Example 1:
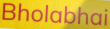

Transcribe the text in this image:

Bholabhai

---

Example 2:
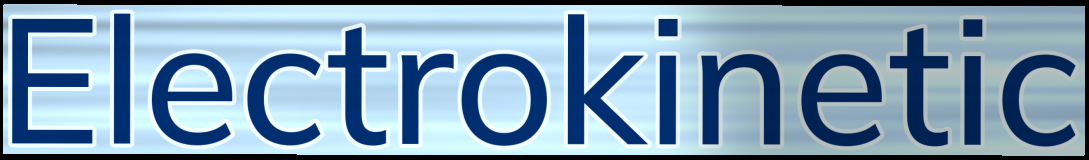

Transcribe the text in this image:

Electrokinetic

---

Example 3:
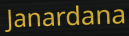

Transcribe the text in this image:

Janardana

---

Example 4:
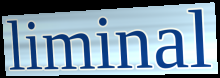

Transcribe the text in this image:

liminal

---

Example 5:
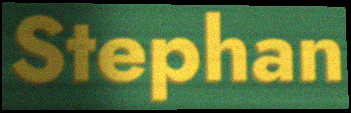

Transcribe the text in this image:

Stephan